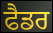
ਫੈਡਰ